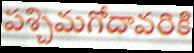
పశ్చిమగోదావరికి